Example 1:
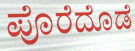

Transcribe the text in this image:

ಪೊರೆದೊಡೆ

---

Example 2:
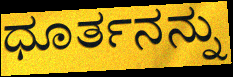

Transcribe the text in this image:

ಧೂರ್ತನನ್ನು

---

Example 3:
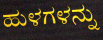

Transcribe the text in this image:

ಹುಳಗಳನ್ನು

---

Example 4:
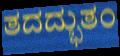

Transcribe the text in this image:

ತದದ್ಭುತಂ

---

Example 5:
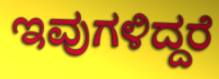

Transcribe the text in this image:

ಇವುಗಳಿದ್ದರೆ